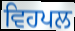
ਵਿਹਪਲ